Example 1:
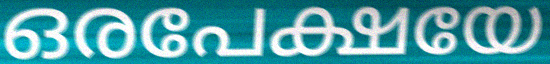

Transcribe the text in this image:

ഒരപേക്ഷയേ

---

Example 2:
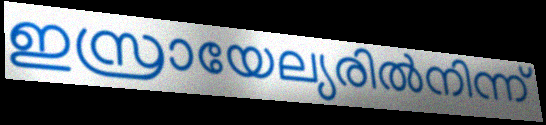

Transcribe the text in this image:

ഇസ്രായേല്യരിൽനിന്ന്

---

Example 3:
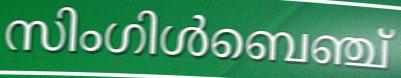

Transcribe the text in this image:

സിംഗിൾബെഞ്ച്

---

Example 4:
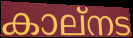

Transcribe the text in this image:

കാല്നട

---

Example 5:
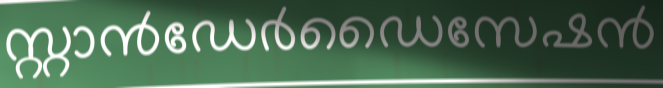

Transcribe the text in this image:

സ്റ്റാൻഡേർഡൈസേഷൻ